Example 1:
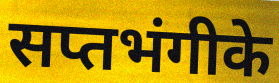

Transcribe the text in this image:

सप्तभंगीके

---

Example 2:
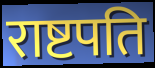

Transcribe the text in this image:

राष्टपति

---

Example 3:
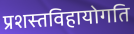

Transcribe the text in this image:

प्रशस्तविहायोगति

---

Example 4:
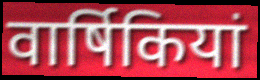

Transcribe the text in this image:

वार्षिकियां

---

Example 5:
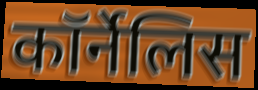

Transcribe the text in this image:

कॉर्नेलिस